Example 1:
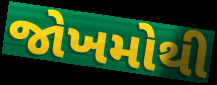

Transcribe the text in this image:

જોખમોથી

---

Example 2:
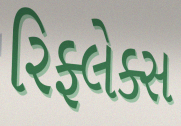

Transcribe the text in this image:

રિફ્લેક્સ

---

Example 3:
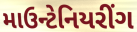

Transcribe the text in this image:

માઉન્ટેનિયરીંગ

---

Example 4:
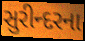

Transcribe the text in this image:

સુરીન્દરના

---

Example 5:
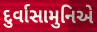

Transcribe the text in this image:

દુર્વાસામુનિએ